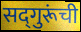
सद्‌गुरूंची